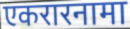
एकरारनामा